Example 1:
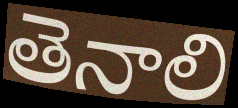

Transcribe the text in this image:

తెనాలి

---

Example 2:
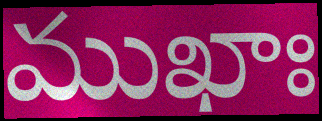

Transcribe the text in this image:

ముఖాః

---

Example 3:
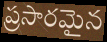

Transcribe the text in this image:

ప్రసారమైన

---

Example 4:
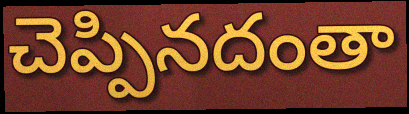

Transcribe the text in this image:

చెప్పినదంతా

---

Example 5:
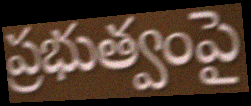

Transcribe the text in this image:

ప్రభుత్వంపై